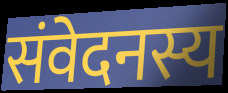
संवेदनस्य